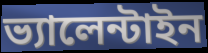
ভ্যালেন্টাইন